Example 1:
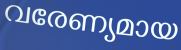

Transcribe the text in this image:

വരേണ്യമായ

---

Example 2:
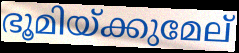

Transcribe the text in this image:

ഭൂമിയ്ക്കുമേല്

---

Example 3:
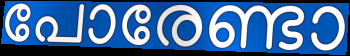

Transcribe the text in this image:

പോരേണ്ടാ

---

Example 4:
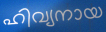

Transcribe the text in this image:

ഹിവ്യനായ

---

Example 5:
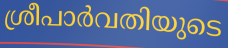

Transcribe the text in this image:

ശ്രീപാർവതിയുടെ